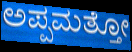
ಅಪ್ಪಮತ್ತೋ